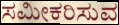
ಸಮೀಕರಿಸುವ